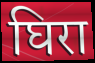
घिरा